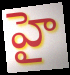
హై